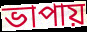
ভাপায়